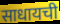
साधायची